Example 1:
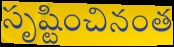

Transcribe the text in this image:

సృష్టించినంత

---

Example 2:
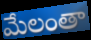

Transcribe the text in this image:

మేలంతా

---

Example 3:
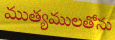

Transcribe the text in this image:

ముత్యములతోను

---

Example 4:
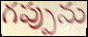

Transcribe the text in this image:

గప్పును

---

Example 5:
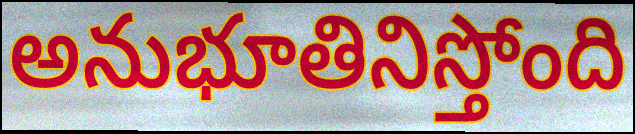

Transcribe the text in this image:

అనుభూతినిస్తోంది